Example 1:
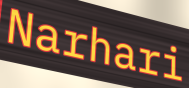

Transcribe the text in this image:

Narhari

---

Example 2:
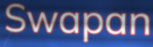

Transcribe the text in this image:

Swapan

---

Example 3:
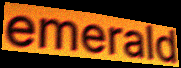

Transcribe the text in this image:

emerald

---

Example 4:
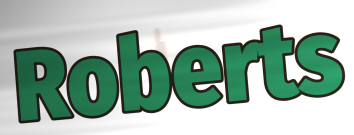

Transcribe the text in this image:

Roberts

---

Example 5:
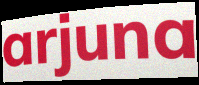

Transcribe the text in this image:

arjuna